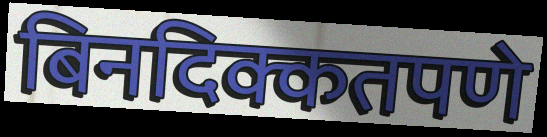
बिनदिक्कतपणे